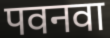
पवनवा